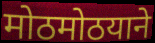
मोठमोठयाने